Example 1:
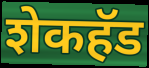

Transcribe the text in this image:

शेकहॅड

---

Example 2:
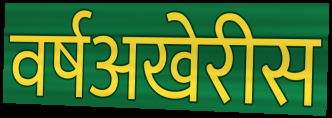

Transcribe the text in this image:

वर्षअखेरीस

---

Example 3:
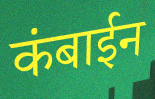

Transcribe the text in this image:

कंबाईन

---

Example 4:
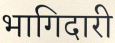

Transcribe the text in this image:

भागिदारी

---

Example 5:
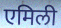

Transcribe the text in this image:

एमिली